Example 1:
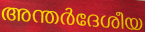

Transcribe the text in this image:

അന്തർദേശീയ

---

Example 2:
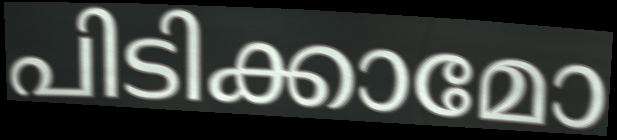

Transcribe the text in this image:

പിടിക്കാമോ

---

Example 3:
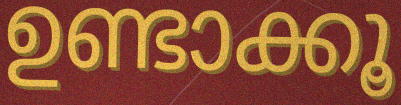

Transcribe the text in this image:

ഉണ്ടാക്കൂ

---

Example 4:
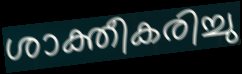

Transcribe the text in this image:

ശാക്തീകരിച്ചു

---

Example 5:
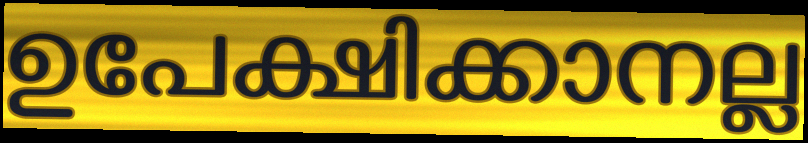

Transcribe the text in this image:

ഉപേക്ഷിക്കാനല്ല